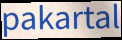
pakartal